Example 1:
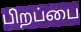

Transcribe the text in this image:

பிறப்பை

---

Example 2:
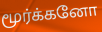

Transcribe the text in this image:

மூர்க்கனோ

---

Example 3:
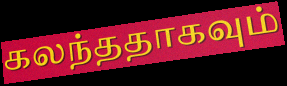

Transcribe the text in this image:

கலந்ததாகவும்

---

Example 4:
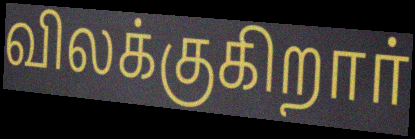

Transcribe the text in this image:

விலக்குகிறார்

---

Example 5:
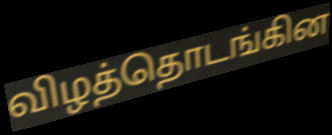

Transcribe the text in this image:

விழத்தொடங்கின